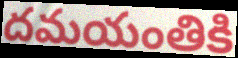
దమయంతికి